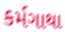
કર્મગાથા